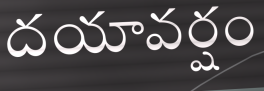
దయావర్షం